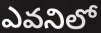
ఎవనిలో